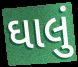
ઘાલું